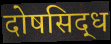
दोषसिद्ध